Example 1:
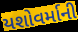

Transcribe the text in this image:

યશોવર્માની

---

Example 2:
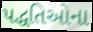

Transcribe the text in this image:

પદ્ધતિઓના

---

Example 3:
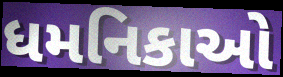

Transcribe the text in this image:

ધમનિકાઓ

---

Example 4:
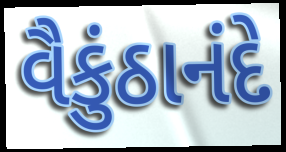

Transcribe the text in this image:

વૈકુંઠાનંદે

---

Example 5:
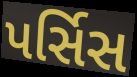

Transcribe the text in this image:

પર્સિસ